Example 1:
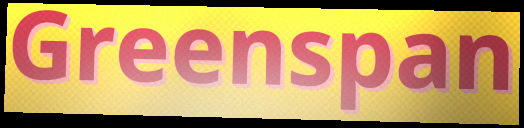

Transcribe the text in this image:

Greenspan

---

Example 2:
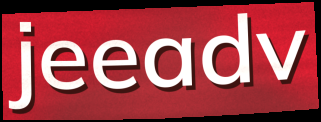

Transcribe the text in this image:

jeeadv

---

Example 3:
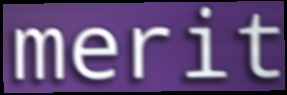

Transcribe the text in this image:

merit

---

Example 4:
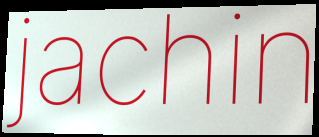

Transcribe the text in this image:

jachin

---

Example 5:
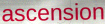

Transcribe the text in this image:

ascension